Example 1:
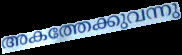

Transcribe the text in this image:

അകത്തേക്കുവന്നു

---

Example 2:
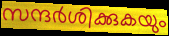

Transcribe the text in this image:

സന്ദർശിക്കുകയും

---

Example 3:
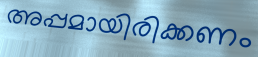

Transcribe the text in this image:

അപ്പമായിരിക്കണം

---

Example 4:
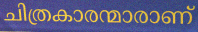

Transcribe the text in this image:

ചിത്രകാരന്മാരാണ്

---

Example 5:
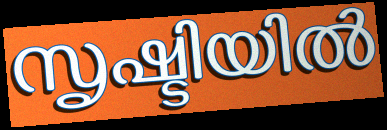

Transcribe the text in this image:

സൃഷ്ടിയിൽ